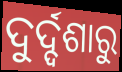
ଦୁର୍ଦ୍ଦଶାରୁ